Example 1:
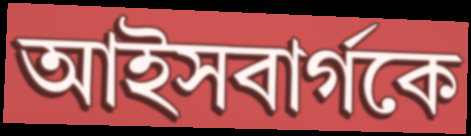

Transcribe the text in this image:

আইসবার্গকে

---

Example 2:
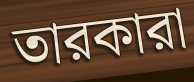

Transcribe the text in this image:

তারকারা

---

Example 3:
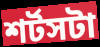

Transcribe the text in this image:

শর্টসটা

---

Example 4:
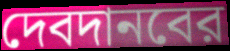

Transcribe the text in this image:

দেবদানবের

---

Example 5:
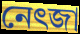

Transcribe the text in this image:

নেৎজা